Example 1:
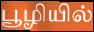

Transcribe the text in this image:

பூழியில்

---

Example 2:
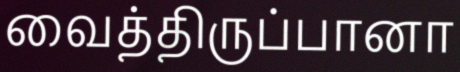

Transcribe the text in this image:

வைத்திருப்பானா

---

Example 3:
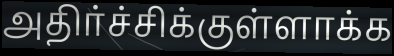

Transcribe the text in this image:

அதிர்ச்சிக்குள்ளாக்க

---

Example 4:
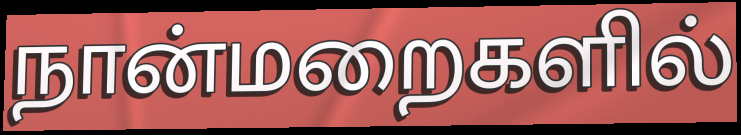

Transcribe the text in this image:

நான்மறைகளில்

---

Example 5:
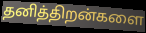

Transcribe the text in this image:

தனித்திறன்களை